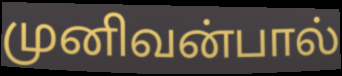
முனிவன்பால்